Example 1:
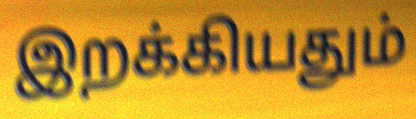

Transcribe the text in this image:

இறக்கியதும்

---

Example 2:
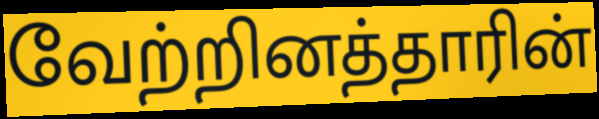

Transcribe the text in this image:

வேற்றினத்தாரின்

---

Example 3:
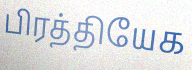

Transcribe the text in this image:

பிரத்தியேக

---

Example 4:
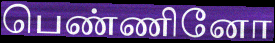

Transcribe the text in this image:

பெண்ணினோ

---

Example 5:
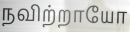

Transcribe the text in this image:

நவிற்றாயோ